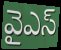
వైఎస్